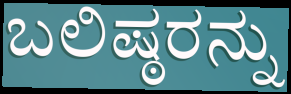
ಬಲಿಷ್ಠರನ್ನು